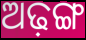
ଅଢ଼ଙ୍ଗ